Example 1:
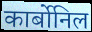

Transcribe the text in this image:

कार्बोनिल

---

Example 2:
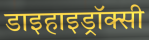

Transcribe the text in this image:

डाइहाइड्रॉक्सी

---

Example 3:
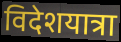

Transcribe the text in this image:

विदेशयात्रा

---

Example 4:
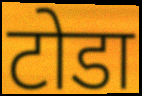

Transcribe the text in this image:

टोडा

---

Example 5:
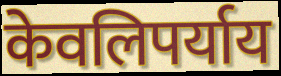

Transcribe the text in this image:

केवलिपर्याय